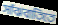
সাঁঝবাতিতে